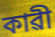
কাৱী